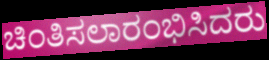
ಚಿಂತಿಸಲಾರಂಭಿಸಿದರು